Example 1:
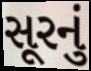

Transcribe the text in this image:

સૂરનું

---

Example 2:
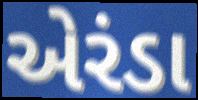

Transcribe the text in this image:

એરંડા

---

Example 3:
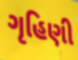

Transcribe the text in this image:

ગૃહિણી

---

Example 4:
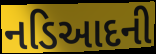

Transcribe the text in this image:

નડિઆદની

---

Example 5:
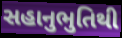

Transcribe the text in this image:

સહાનુભુતિથી